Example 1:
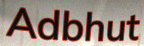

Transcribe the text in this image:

Adbhut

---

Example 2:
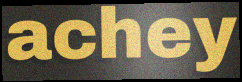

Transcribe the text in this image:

achey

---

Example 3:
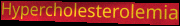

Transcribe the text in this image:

Hypercholesterolemia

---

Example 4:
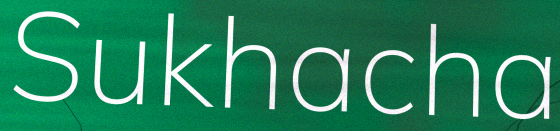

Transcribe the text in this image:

Sukhacha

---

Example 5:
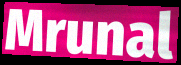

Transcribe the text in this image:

Mrunal